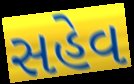
સહેવ